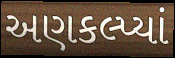
અણકલ્પ્યાં